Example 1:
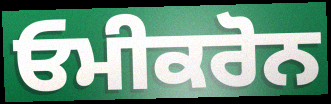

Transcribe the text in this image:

ਓਮੀਕਰੋਨ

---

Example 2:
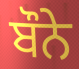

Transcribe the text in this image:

ਬੌਨੇ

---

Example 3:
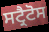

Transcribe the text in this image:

ਸਟ੍ਰੈਟੋਸ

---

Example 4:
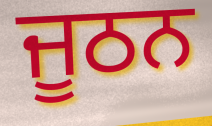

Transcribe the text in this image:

ਜੂਠਨ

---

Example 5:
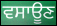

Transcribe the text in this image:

ਵਸਾਊਣ